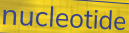
nucleotide